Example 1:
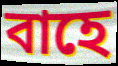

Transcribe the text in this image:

বাহে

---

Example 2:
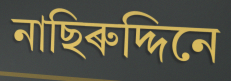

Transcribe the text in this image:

নাছিৰুদ্দিনে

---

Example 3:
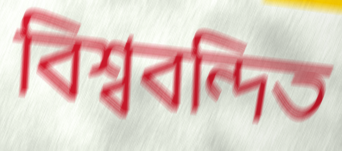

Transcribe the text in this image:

বিশ্ববন্দিত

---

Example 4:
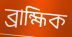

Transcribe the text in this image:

ব্ৰাহ্মিক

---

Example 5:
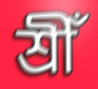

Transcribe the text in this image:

শ্ৰীঁ